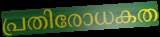
പ്രതിരോധകത